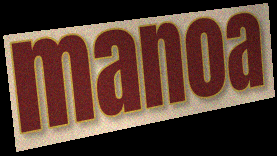
manoa